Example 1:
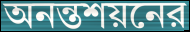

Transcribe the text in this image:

অনন্তশয়নের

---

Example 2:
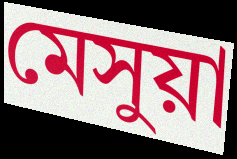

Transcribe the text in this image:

মেসুয়া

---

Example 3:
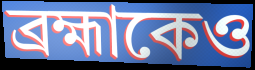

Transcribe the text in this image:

ব্রহ্মাকেও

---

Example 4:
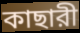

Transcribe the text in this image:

কাছারী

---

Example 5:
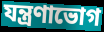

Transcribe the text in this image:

যন্ত্রণাভোগ